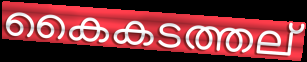
കൈകടത്തല്